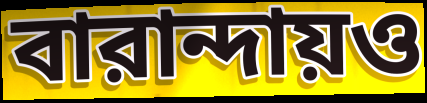
বারান্দায়ও